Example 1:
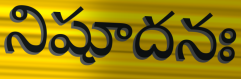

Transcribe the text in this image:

నిషూదనః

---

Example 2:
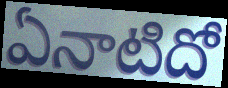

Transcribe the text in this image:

ఏనాటిదో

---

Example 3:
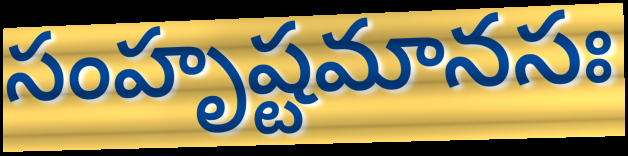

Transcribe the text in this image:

సంహృష్టమానసః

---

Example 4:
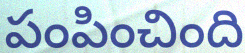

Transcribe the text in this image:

పంపించింది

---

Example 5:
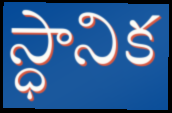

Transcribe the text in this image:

స్ధానిక